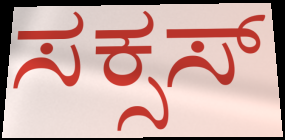
ಸಕ್ಸಸ್